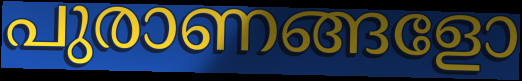
പുരാണങ്ങളോ